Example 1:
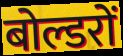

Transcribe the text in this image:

बोल्डरों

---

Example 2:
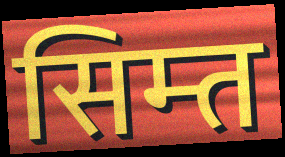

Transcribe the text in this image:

सिम्त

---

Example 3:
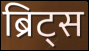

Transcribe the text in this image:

ब्रिट्स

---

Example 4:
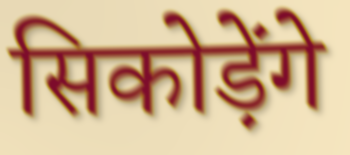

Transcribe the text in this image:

सिकोड़ेंगे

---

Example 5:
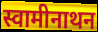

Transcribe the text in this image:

स्वामीनाथन